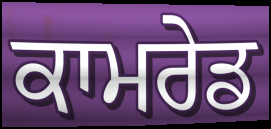
ਕਾਮਰੇਡ